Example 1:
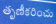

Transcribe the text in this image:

తృణీకరించు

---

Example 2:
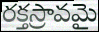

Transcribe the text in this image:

రక్తస్రావమై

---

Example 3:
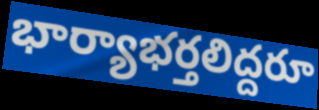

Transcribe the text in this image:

భార్యాభర్తలిద్దరూ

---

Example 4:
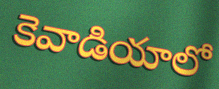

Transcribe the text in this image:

కెవాడియాలో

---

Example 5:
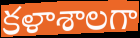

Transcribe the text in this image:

కళాశాలగా